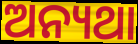
ଅନ୍ୟଥା